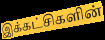
இக்கட்சிகளின்